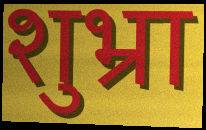
शुभ्रा